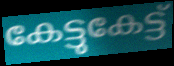
കേട്ടുകേട്ട്